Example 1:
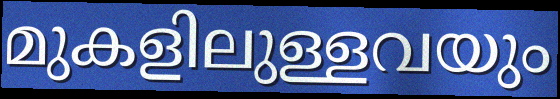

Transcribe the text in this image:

മുകളിലുള്ളവയും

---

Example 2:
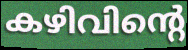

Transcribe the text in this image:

കഴിവിന്റെ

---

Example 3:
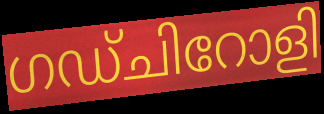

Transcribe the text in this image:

ഗഡ്ചിറോളി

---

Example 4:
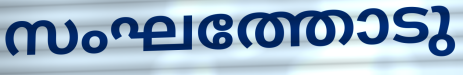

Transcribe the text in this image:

സംഘത്തോടു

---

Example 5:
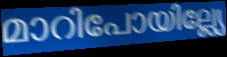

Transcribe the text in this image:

മാറിപോയില്ല്യേ